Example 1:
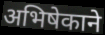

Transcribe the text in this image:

अभिषेकाने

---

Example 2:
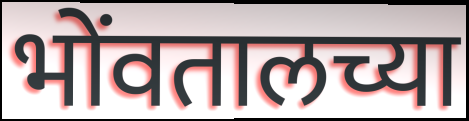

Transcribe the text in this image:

भोंवतालच्या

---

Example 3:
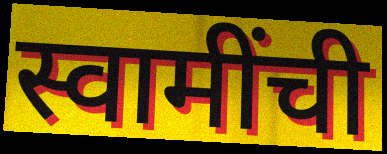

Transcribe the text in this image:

स्वामींची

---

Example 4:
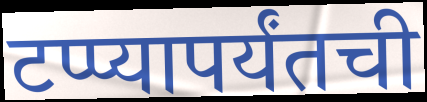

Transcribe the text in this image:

टप्प्यापर्यंतची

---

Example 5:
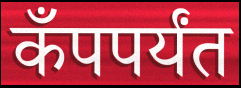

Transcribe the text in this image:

कँपपर्यंत